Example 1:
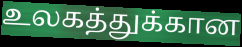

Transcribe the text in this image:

உலகத்துக்கான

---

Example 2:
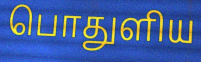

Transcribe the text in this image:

பொதுளிய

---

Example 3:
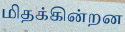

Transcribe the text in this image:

மிதக்கின்றன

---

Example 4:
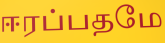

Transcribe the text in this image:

ஈரப்பதமே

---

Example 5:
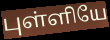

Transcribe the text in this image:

புள்ளியே